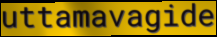
uttamavagide